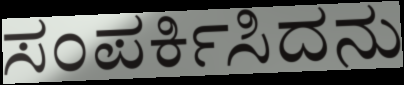
ಸಂಪರ್ಕಿಸಿದನು